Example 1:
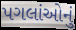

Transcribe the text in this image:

પગલાંઓનું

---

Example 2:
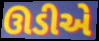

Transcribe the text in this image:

ઊડીએ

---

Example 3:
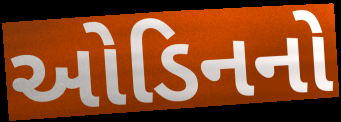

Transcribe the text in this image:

ઓડિનનો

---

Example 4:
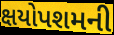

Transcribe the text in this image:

ક્ષયોપશમની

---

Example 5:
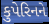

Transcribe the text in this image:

કુપેરિનને